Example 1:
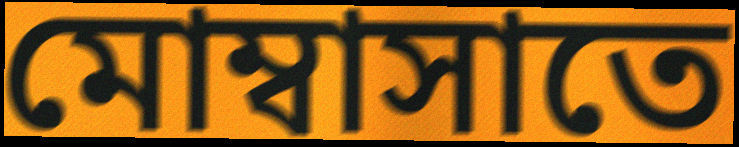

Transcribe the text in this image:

মোম্বাসাতে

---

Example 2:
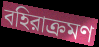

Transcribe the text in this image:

বহিরাক্রমণ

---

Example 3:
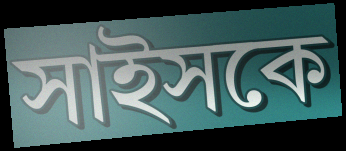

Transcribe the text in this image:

সাইসকে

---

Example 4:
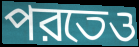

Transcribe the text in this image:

পরতেও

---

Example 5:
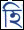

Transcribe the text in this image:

হি